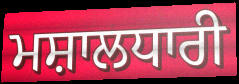
ਮਸ਼ਾਲਧਾਰੀ